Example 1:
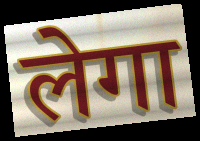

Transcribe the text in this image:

लेगा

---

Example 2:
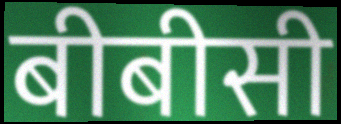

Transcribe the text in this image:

बीबीसी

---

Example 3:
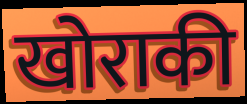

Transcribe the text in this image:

खोराकी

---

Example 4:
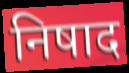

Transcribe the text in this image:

निषाद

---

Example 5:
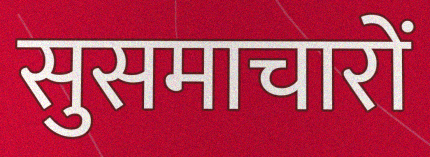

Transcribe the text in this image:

सुसमाचारों